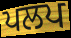
ਪਲਪ